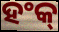
ହଂକ୍